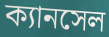
ক্যানসেল